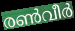
രൺവീർ